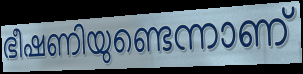
ഭീഷണിയുണ്ടെന്നാണ്